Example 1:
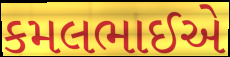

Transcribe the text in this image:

કમલભાઈએ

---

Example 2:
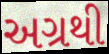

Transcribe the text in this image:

અગ્રથી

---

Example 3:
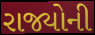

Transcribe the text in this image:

રાજ્યોની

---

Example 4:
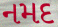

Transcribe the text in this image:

નમદ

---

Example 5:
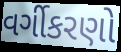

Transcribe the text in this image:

વર્ગીકરણો